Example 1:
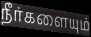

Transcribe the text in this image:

நீர்களையும்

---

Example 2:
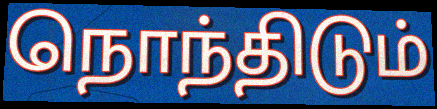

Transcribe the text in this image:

நொந்திடும்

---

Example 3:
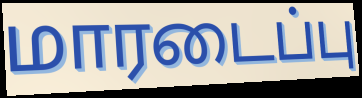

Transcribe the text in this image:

மாரடைப்பு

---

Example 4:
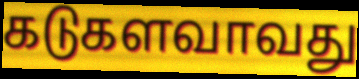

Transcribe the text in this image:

கடுகளவாவது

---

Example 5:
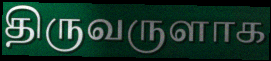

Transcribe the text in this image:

திருவருளாக